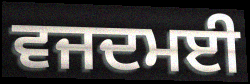
ਵਜਦਮਈ